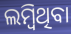
ଲମ୍ବିଥିବା